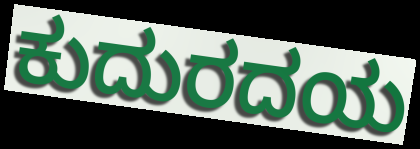
ಕುದುರದಯ